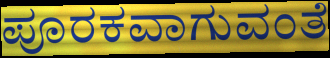
ಪೂರಕವಾಗುವಂತೆ